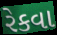
રેકવા